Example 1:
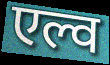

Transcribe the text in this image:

एल्व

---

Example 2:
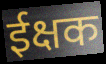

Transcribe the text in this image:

ईक्षक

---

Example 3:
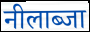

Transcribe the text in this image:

नीलाब्जा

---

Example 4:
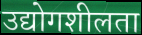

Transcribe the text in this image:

उद्योगशीलता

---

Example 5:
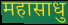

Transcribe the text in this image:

महासाधु